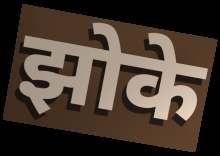
झोके